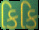
કિકિ